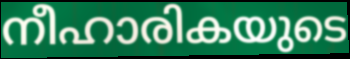
നീഹാരികയുടെ